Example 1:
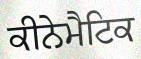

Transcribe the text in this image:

ਕੀਨੇਮੈਟਿਕ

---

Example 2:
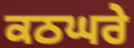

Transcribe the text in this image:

ਕਠਘਰੇ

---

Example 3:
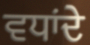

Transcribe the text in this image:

ਵਧਾਂਦੇ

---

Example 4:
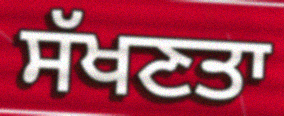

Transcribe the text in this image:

ਸੱਖਣਤਾ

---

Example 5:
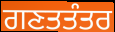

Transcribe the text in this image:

ਗਣਤਤੰਤਰ